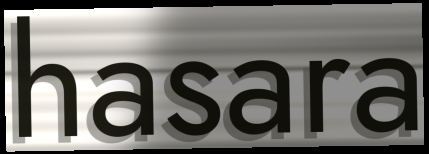
hasara